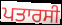
ਪਤਾਰਸੀ